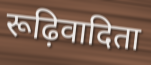
रूढ़िवादिता